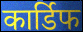
कार्डिफ